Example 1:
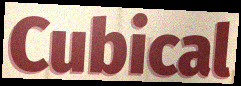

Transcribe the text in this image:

Cubical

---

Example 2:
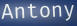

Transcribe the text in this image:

Antony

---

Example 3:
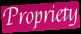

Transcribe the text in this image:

Propriety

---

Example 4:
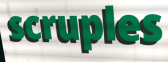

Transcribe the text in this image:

scruples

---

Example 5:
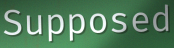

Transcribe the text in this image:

Supposed